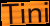
Tini